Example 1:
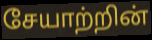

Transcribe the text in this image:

சேயாற்றின்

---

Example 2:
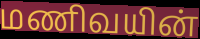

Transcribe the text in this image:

மணிவயின்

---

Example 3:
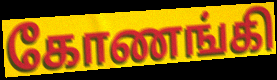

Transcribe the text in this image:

கோணங்கி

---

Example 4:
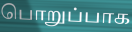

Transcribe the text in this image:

பொறுப்பாக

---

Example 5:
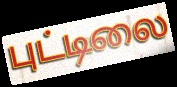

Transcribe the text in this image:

புட்டிலை